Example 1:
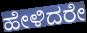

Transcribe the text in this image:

ಹೇಳಿದರೇ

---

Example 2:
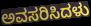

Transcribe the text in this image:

ಅವಸರಿಸಿದಳು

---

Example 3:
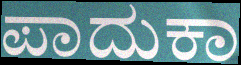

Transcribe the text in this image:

ಪಾದುಕಾ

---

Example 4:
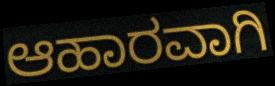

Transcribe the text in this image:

ಆಹಾರವಾಗಿ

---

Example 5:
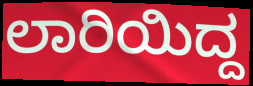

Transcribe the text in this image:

ಲಾರಿಯಿದ್ದ